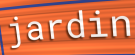
jardin